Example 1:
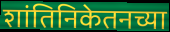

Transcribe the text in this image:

शांतिनिकेतनच्या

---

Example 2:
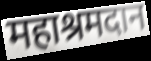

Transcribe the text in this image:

महाश्रमदान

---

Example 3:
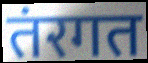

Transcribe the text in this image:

तंरगत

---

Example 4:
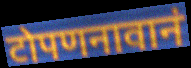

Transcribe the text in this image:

टोपणनावानं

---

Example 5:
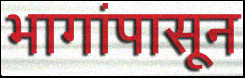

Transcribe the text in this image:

भागांपासून